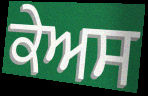
ਕੇਅਸ